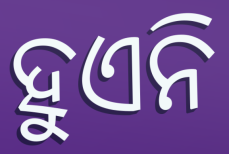
ହୁଏନି